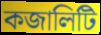
কজালিটি